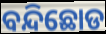
ବନ୍ଦିଛୋଡ